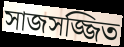
সাজসজ্জিত